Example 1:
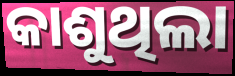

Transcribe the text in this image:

କାଶୁଥିଲା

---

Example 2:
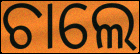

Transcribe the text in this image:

ଚାଲେ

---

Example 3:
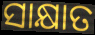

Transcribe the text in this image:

ସାକ୍ଷାତ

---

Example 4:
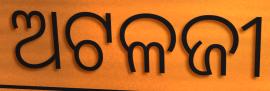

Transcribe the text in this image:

ଅଟଳଜୀ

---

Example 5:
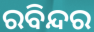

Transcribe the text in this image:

ରବିନ୍ଦର